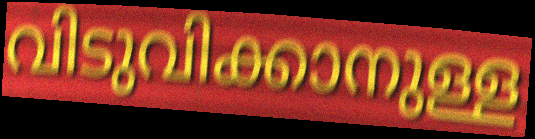
വിടുവിക്കാനുള്ള